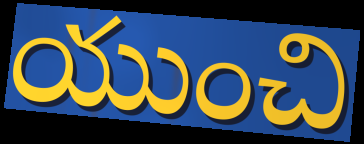
యుంచి